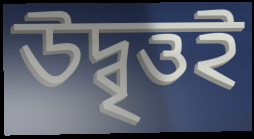
উদ্বৃত্তই